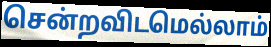
சென்றவிடமெல்லாம்